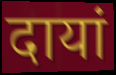
दायां